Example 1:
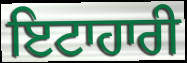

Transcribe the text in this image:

ਇਟਾਹਾਰੀ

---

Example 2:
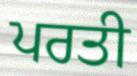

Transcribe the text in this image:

ਪਰਤੀ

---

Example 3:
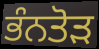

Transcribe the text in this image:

ਭੰਨਤੋੜ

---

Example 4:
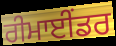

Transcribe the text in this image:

ਰੀਮਾਈਂਡਰ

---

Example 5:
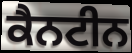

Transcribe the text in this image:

ਕੈਨਟੀਨ